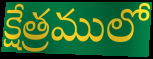
క్షేత్రములో